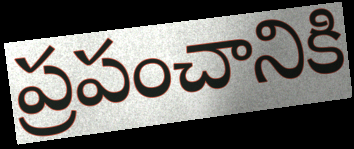
ప్రపంచానికి